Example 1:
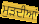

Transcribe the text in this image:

ਮੁੜਦੀਆਂ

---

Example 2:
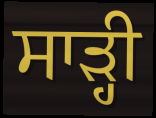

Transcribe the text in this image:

ਸਾੜ੍ਹੀ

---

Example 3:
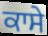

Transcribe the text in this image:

ਕਾਸੇ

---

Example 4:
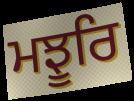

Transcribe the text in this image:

ਮਝੂਰਿ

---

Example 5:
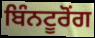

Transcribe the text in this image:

ਬਿੰਨਟੂਰੋਂਗ